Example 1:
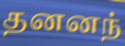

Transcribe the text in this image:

தனனந்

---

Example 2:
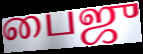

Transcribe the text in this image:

பைஜு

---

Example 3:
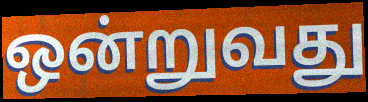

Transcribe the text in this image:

ஒன்றுவது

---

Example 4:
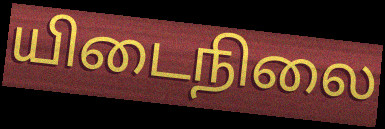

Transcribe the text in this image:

யிடைநிலை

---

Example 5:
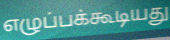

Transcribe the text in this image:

எழுப்பக்கூடியது